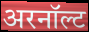
अरनॉल्ट